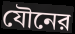
যৌনের